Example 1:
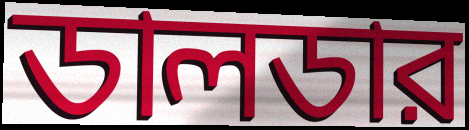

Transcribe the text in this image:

ডালডার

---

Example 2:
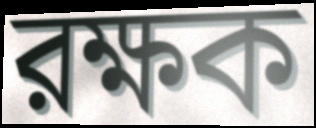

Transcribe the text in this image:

রক্ষক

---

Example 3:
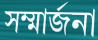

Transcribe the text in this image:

সম্মার্জনা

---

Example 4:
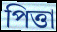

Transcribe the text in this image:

পিত্তা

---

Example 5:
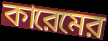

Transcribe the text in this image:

কারেমের